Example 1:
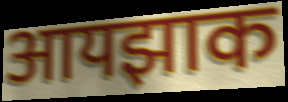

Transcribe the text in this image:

आयझाक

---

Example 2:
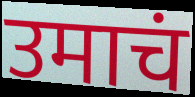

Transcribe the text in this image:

उमाचं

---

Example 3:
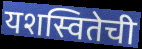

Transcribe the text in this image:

यशस्वितेची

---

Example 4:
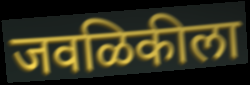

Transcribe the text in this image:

जवळिकीला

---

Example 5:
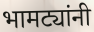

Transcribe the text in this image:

भामट्यांनी